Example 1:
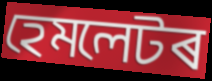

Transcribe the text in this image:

হেমলেটৰ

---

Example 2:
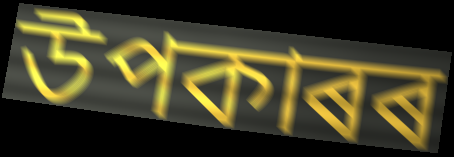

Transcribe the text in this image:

উপকাৰৰ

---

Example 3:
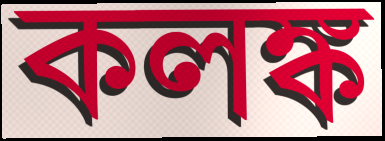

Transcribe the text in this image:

কলঙ্ক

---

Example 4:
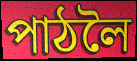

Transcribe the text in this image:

পাঠলৈ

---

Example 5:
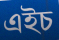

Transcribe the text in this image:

এইচ